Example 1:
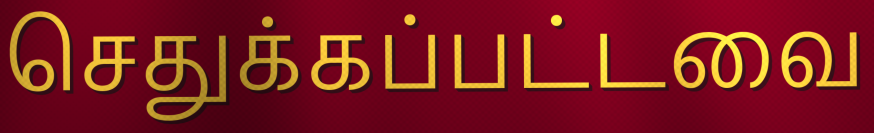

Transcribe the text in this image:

செதுக்கப்பட்டவை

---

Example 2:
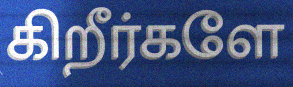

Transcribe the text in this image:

கிறீர்களே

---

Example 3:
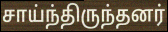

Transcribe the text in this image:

சாய்ந்திருந்தனர்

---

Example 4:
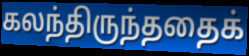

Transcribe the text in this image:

கலந்திருந்ததைக்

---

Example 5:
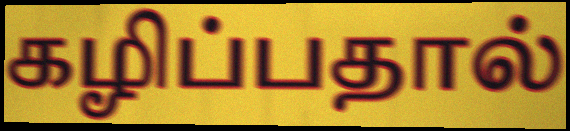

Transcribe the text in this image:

கழிப்பதால்